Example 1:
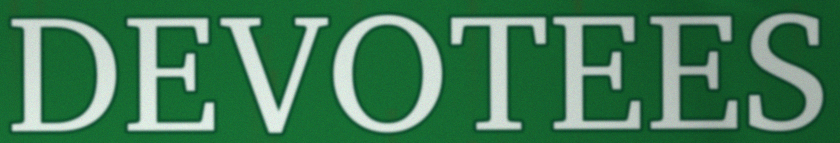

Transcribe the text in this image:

DEVOTEES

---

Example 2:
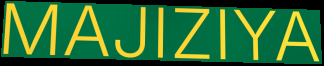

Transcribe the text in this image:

MAJIZIYA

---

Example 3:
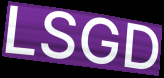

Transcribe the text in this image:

LSGD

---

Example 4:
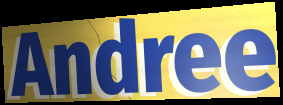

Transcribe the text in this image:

Andree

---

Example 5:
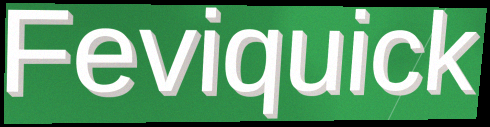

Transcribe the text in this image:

Feviquick